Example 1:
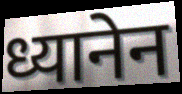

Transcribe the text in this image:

ध्यानेन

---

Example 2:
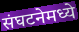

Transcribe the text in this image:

संघटनेमध्ये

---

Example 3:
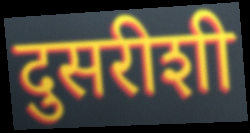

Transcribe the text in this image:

दुसरीशी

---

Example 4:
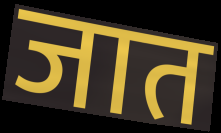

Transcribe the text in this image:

जात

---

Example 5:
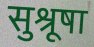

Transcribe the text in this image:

सुश्रूषा